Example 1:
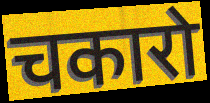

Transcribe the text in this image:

चकारो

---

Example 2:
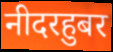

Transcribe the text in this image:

नीदरहुबर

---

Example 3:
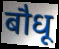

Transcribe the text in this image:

बौधू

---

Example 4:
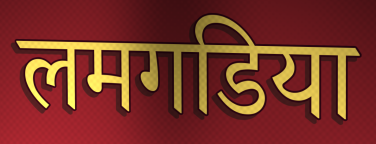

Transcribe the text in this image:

लमगडिया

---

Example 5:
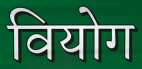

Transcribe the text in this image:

वियोग